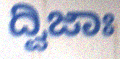
ದ್ವಿಜಾಃ